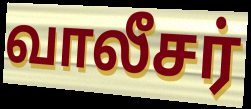
வாலீசர்